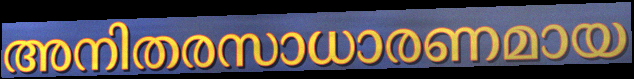
അനിതരസാധാരണമായ